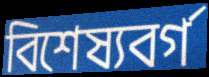
বিশেষ্যবর্গ